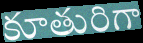
కూతురిగా